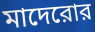
মাদেরোর